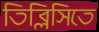
তিব্লিসিতে